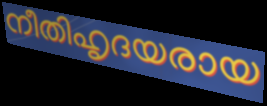
നീതിഹൃദയരായ